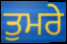
ਤੁਮਰੇ